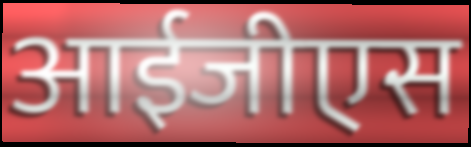
आईजीएस